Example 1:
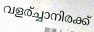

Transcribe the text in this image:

വളര്ച്ചാനിരക്ക്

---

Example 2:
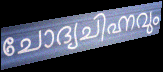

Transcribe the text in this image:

ചോദ്യചിഹ്നവും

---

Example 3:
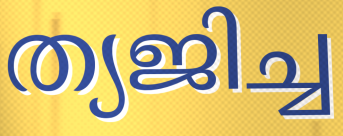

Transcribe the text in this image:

ത്യജിച്ച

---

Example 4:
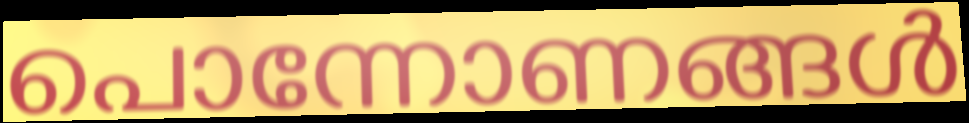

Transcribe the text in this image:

പൊന്നോണങ്ങൾ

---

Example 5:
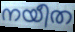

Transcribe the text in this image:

നയീത